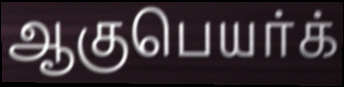
ஆகுபெயர்க்